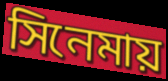
সিনেমায়